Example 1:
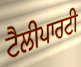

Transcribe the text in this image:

ਟੈਲੀਪਾਰਟੀ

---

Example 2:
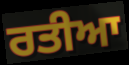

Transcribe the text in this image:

ਰਤੀਆ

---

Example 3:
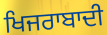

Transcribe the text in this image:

ਖਿਜਰਾਬਾਦੀ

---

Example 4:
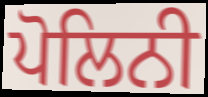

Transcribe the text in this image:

ਪੋਲਿਨੀ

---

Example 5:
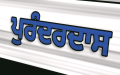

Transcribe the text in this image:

ਪੁਰੰਦਰਦਾਸ